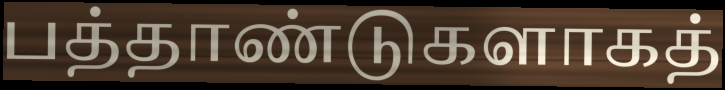
பத்தாண்டுகளாகத்